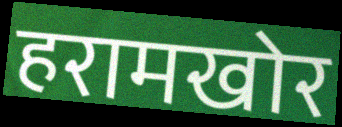
हरामखोर